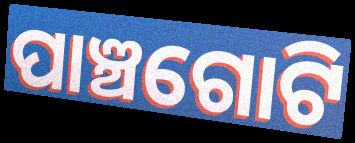
ପାଞ୍ଚଗୋଟି